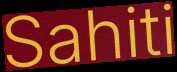
Sahiti